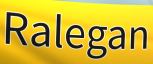
Ralegan